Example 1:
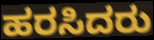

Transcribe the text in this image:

ಹರಸಿದರು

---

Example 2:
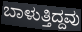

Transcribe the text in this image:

ಬಾಳುತ್ತಿದ್ದವು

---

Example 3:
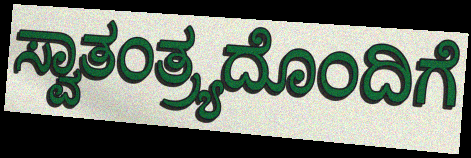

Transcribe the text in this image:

ಸ್ವಾತಂತ್ರ್ಯದೊಂದಿಗೆ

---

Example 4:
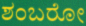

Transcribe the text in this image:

ಶಂಬರೋ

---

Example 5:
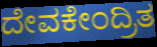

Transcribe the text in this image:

ದೇವಕೇಂದ್ರಿತ